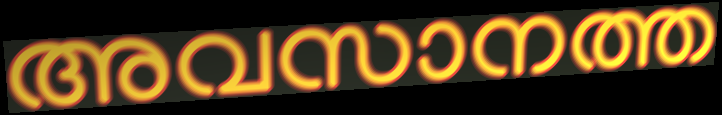
അവസാനത്ത